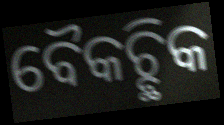
ବୈକଚ୍ଛିକ